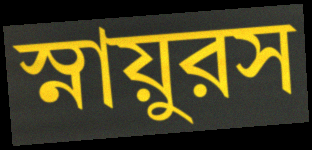
স্নায়ুরস